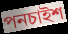
পনচাইশ